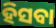
ହିସବା